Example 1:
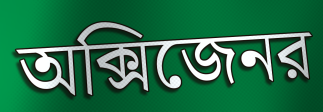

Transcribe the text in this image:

অক্সিজেনর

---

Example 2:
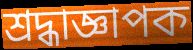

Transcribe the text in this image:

শ্রদ্ধাজ্ঞাপক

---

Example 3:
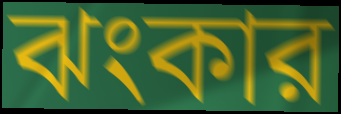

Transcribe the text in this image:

ঝংকার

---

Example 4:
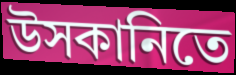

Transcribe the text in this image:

উসকানিতে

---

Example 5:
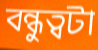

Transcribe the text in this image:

বন্ধুত্বটা